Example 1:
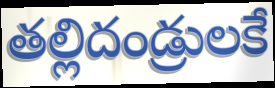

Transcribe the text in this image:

తల్లిదండ్రులకే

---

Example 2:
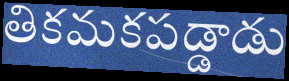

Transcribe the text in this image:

తికమకపడ్డాడు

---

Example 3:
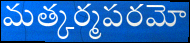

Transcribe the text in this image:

మత్కర్మపరమో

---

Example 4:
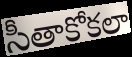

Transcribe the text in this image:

సీతాకోకలా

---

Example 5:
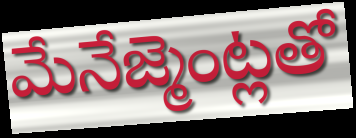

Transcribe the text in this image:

మేనేజ్మెంట్లతో